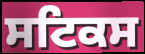
ਸਟਿਕਸ